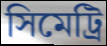
সিমেট্রি